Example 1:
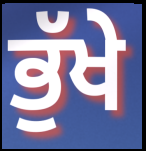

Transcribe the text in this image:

ਭੁੱਖੇ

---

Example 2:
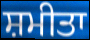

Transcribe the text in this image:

ਸ਼ਮੀਤਾ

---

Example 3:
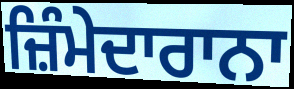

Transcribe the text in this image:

ਜ਼ਿੰਮੇਦਾਰਾਨਾ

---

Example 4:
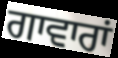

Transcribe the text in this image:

ਗਾਵਾਰਾਂ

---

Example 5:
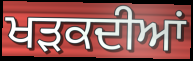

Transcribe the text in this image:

ਖੜਕਦੀਆਂ